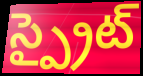
స్ప్రైట్